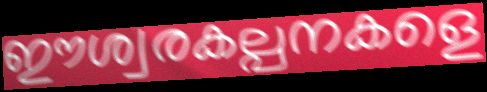
ഈശ്വരകല്പനകളെ